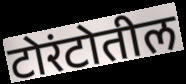
टोरंटोतील